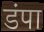
डंपा